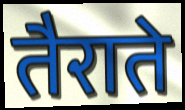
तैराते